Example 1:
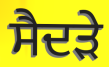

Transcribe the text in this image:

ਸੈਦੜੇ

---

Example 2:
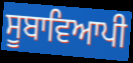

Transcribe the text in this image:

ਸੂਬਾਵਿਆਪੀ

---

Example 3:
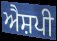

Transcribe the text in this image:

ਐਸ਼ਪੀ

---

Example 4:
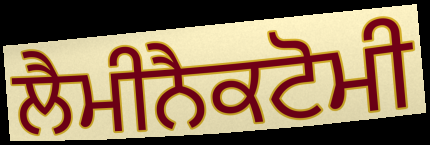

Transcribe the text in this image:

ਲੈਮੀਨੈਕਟੋਮੀ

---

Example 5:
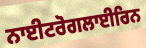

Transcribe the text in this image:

ਨਾਈਟਰੋਗਲਾਈਰਿਨ